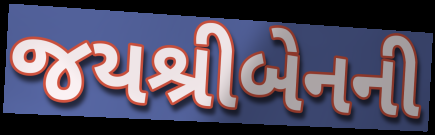
જયશ્રીબેનની